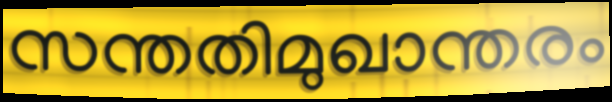
സന്തതിമുഖാന്തരം